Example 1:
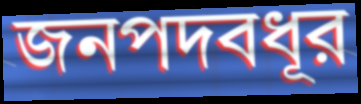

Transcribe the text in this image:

জনপদবধূর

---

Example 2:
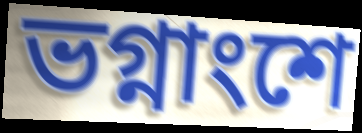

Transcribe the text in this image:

ভগ্নাংশে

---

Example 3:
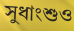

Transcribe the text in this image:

সুধাংশুও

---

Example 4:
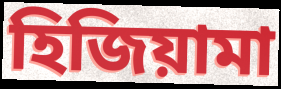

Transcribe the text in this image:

হিজিয়ামা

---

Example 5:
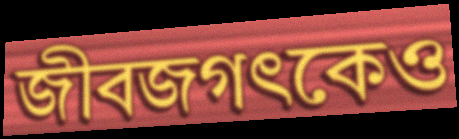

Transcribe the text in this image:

জীবজগৎকেও